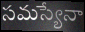
సమస్యేనా